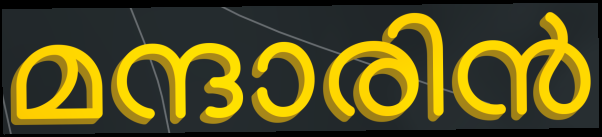
മന്ദാരിൻ